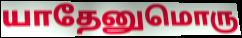
யாதேனுமொரு